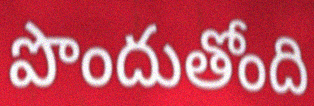
పొందుతోంది